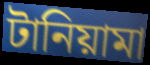
টানিয়ামা